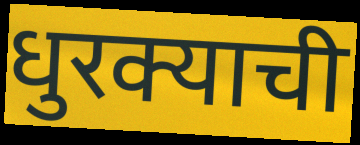
धुरक्याची